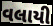
વલાયી